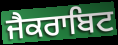
ਜੈਕਰਾਬਿਟ